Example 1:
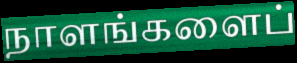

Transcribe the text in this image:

நாளங்களைப்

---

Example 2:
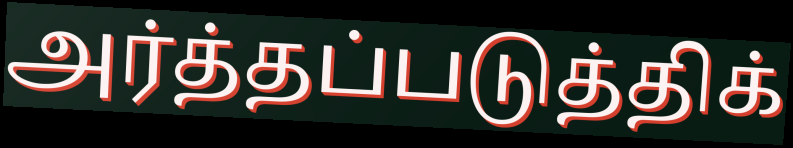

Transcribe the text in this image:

அர்த்தப்படுத்திக்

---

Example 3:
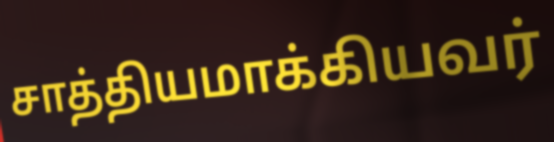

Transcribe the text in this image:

சாத்தியமாக்கியவர்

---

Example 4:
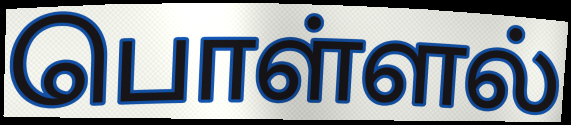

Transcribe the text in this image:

பொள்ளல்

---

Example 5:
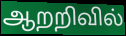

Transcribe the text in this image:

ஆறறிவில்